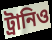
ট্রানিও